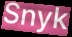
Snyk